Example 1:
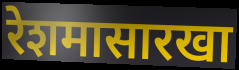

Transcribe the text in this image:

रेशमासारखा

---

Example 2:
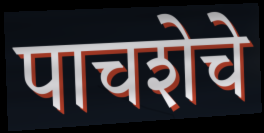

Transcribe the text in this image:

पाचशेचे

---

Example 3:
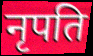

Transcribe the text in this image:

नृपति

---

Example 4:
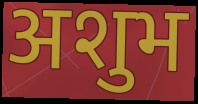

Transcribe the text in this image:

अशुभ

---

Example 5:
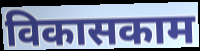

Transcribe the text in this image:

विकासकाम